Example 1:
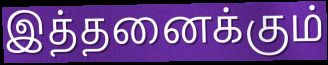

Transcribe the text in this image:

இத்தனைக்கும்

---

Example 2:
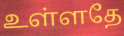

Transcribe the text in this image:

உள்ளதே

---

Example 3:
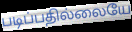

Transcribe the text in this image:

படிப்பதில்லையே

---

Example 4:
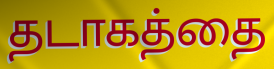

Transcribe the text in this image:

தடாகத்தை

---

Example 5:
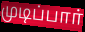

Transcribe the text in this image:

முடிப்பார்